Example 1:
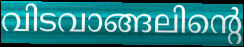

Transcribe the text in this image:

വിടവാങ്ങലിന്റെ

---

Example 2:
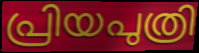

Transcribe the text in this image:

പ്രിയപുത്രി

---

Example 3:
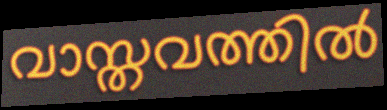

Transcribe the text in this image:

വാസ്തവത്തിൽ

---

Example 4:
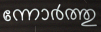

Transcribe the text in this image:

ന്നോർത്തു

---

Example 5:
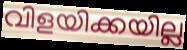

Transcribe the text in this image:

വിളയിക്കയില്ല